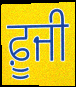
ਫ਼ੂਜੀ